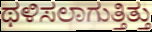
ಥಳಿಸಲಾಗುತ್ತಿತ್ತು